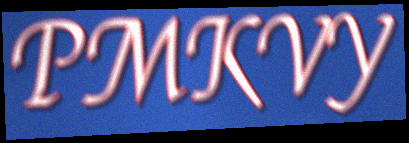
PMKVY